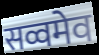
सव्वमेव